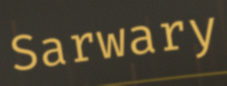
Sarwary